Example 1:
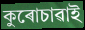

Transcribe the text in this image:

কুৰোচাৱাই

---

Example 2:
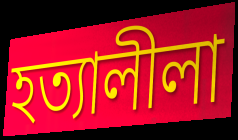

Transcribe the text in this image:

হত্যালীলা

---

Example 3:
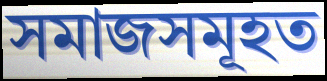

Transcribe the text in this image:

সমাজসমূহত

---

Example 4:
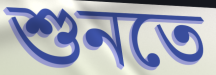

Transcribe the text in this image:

শুনতে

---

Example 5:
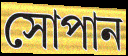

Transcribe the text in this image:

সোপান